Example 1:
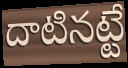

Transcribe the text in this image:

దాటినట్టే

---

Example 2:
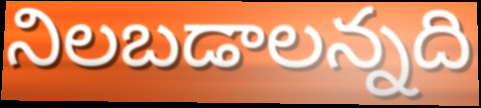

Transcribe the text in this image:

నిలబడాలన్నది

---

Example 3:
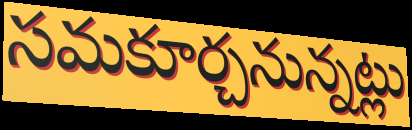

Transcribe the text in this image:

సమకూర్చనున్నట్లు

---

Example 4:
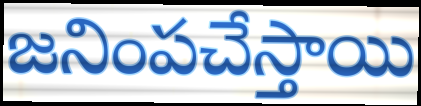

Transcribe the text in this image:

జనింపచేస్తాయి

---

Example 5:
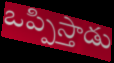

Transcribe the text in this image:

ఒప్పిస్తాడు